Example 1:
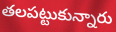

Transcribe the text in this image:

తలపట్టుకున్నారు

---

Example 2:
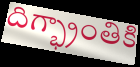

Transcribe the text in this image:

దిగ్భ్రాంతికి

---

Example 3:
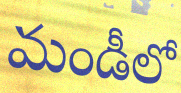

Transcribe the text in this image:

మండీలో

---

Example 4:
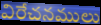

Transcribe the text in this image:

విరేచనములు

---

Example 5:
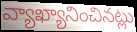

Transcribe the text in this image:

వ్యాఖ్యానించినట్లు